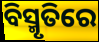
ବିସ୍ମୃତିରେ